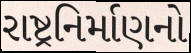
રાષ્ટ્રનિર્માણનો